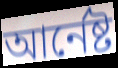
আৰ্নেষ্ট